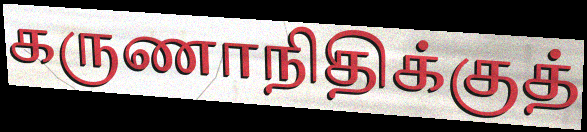
கருணாநிதிக்குத்